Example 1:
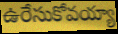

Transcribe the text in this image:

ఉరేసుకోవయ్యా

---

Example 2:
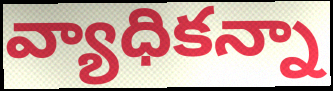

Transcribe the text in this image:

వ్యాధికన్నా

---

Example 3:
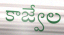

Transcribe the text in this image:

కాజ్వేల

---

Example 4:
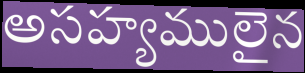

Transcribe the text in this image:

అసహ్యములైన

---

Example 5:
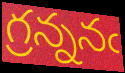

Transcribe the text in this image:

గ్రన్ననఁ